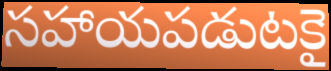
సహాయపడుటకై